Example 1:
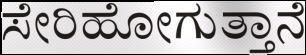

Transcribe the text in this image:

ಸೇರಿಹೋಗುತ್ತಾನೆ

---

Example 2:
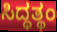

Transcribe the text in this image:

ಸಿದ್ಧತ್ಥಂ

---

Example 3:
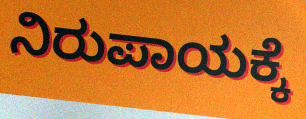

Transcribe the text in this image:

ನಿರುಪಾಯಕ್ಕೆ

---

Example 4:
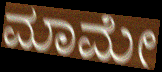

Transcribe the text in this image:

ಮಾಮೇ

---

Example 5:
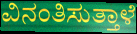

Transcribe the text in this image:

ವಿನಂತಿಸುತ್ತಾಳೆ